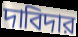
দাবিদার